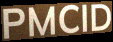
PMCID